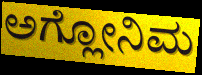
ಅಗ್ಲೋನಿಮ